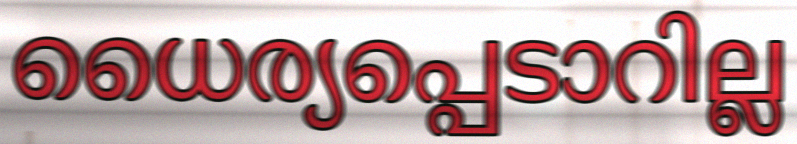
ധൈര്യപ്പെടാറില്ല